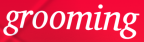
grooming